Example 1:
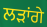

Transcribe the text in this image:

ਲੜਾਂਗੇ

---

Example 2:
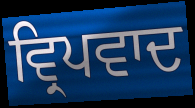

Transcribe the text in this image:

ਵ੍ਰਿਪਵਾਦ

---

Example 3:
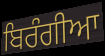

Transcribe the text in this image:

ਬਿਰੰਗੀਆ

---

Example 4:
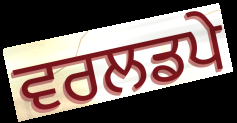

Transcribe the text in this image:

ਵਰਲਡਪੇ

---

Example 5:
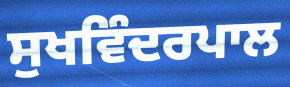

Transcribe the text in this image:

ਸੁਖਵਿੰਦਰਪਾਲ